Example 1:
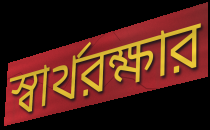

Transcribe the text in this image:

স্বার্থরক্ষার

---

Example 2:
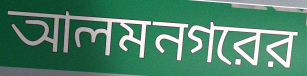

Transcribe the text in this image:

আলমনগরের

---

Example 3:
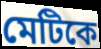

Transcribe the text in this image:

মেটিকে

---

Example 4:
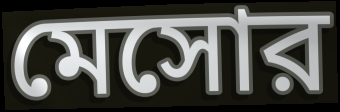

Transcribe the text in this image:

মেসোর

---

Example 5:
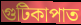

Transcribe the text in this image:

গুটিকাপাত